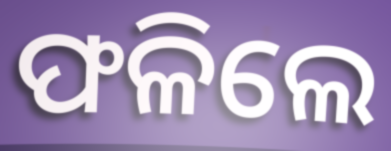
ଫଳିଲେ